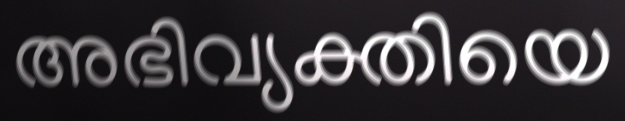
അഭിവ്യക്തിയെ